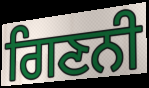
ਗਿਣਨੀ